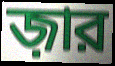
জ়ার